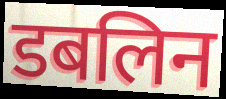
डबलिन